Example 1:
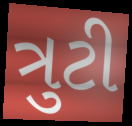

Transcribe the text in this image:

ત્રુટી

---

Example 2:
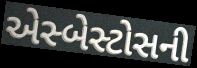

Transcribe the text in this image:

એસ્બેસ્ટોસની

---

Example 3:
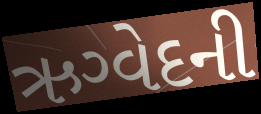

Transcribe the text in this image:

ઋગ્વેદની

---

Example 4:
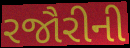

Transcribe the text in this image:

રજૌરીની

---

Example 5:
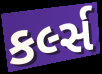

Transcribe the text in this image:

કર્લ્સ